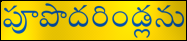
పూపొదరిండ్లను